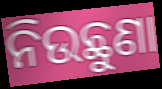
ନିଉଛୁଣା